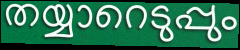
തയ്യാറെടുപ്പും